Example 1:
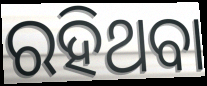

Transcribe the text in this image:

ରହିଥବା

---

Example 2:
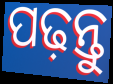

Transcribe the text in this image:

ପଢ଼ନ୍ତୁ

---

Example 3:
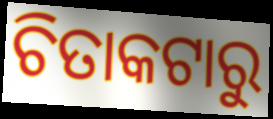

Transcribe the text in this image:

ଚିତାକଟାରୁ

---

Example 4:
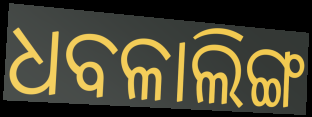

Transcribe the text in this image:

ଧବଳାଲିଙ୍ଗ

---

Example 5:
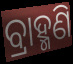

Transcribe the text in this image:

ବ୍ରାହ୍ମଣି